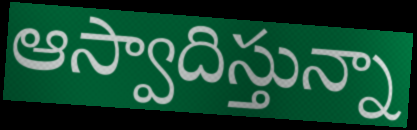
ఆస్వాదిస్తున్నా